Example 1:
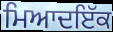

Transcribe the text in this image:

ਮਿਆਦਇੱਕ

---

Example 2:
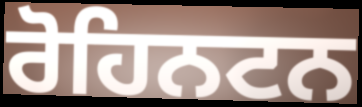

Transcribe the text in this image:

ਰੋਹਿਨਟਨ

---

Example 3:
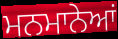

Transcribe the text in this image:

ਮਨਮਾਨੇਆਂ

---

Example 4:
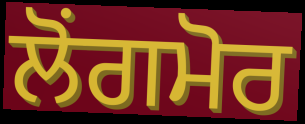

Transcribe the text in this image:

ਲੋਂਗਮੋਰ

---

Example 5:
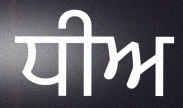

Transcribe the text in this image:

ਧੀਅ